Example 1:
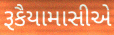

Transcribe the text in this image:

રૂકૈયામાસીએ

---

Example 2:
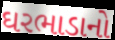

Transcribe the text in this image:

ઘરભાડાનો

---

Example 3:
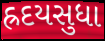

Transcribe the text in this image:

હ્રદયસુધા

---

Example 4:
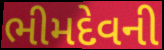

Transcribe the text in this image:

ભીમદેવની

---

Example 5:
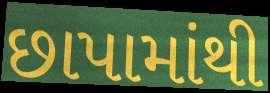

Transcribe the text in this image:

છાપામાંથી